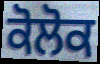
ਕੋਲੋਕ